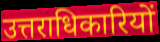
उत्तराधिकारियों